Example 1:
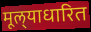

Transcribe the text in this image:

मूल्याधारित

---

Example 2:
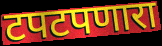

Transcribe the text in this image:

टपटपणारा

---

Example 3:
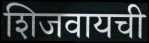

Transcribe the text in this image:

शिजवायची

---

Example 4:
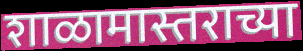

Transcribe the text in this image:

शाळामास्तराच्या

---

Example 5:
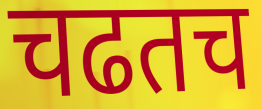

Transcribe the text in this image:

चढतच